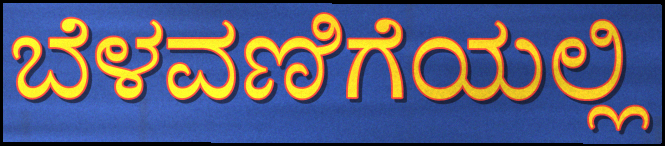
ಬೆಳವಣಿಗೆಯಲ್ಲಿ